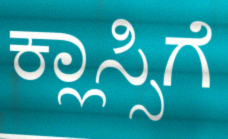
ಕ್ಲಾಸ್ಸಿಗೆ